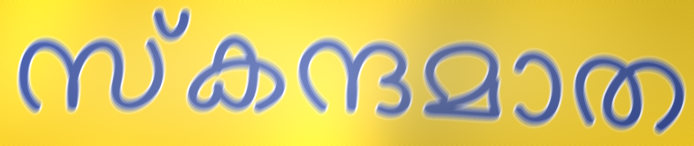
സ്കന്ദമാത